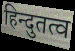
हिन्दुतत्व